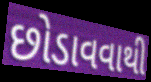
છોડાવવાથી